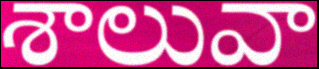
శాలువా